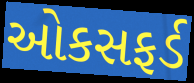
ઓકસફર્ડ